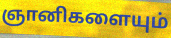
ஞானிகளையும்